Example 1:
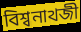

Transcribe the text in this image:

বিশ্বনাথজী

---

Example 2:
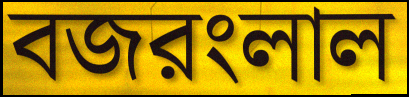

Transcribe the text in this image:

বজরংলাল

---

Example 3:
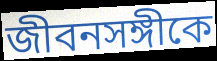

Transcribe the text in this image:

জীবনসঙ্গীকে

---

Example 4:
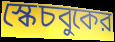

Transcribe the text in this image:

স্কেচবুকের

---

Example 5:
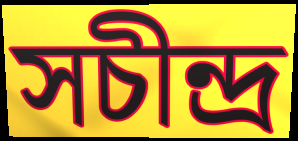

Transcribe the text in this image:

সচীন্দ্র